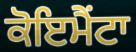
ਕੋਇਮੈਂਟਾ